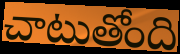
చాటుతోంది